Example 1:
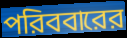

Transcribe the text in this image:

পরিববারের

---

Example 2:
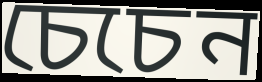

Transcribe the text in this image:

চেচেন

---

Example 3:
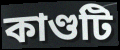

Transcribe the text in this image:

কাণ্ডটি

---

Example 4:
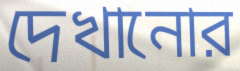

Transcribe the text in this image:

দেখানোর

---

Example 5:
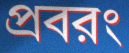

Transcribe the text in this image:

প্রবরং